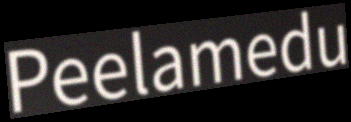
Peelamedu